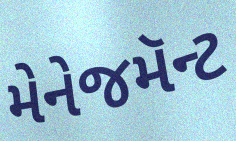
મેનેજમૅન્ટ